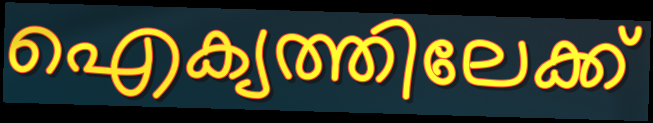
ഐക്യത്തിലേക്ക്